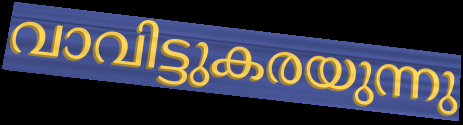
വാവിട്ടുകരയുന്നു